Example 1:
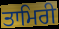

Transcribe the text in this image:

ਤਾਮਿਰੀ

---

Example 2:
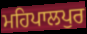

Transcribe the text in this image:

ਮਹਿਪਾਲਪੁਰ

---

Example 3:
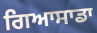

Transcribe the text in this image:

ਗਿਆਸਾਡਾ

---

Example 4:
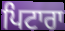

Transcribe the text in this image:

ਪਿਟਾਰਾ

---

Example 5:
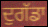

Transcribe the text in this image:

ਦੁਗੱਡਾ